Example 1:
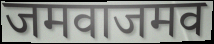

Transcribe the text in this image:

जमवाजमव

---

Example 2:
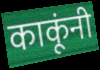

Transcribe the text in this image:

काकूंनी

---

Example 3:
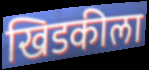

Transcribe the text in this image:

खिडकीला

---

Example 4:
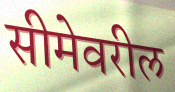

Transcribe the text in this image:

सीमेवरील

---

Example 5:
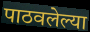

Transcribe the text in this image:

पाठवलेल्या